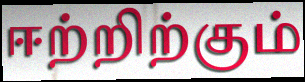
ஈற்றிற்கும்